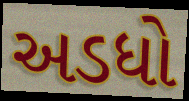
અડધો